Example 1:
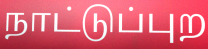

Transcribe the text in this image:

நாட்டுப்புற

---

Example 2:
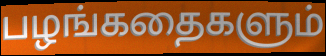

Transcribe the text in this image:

பழங்கதைகளும்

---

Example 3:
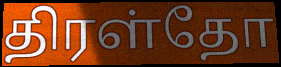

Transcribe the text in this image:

திரள்தோ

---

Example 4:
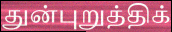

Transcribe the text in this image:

துன்புறுத்திக்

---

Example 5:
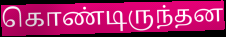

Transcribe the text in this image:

கொண்டிருந்தன